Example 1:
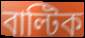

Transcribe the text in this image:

বাল্টিক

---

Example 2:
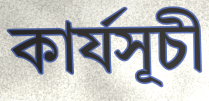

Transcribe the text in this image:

কাৰ্যসূচী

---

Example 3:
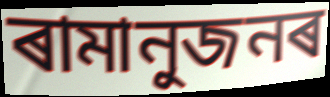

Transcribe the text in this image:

ৰামানুজনৰ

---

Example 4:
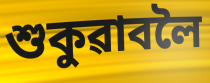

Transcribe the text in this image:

শুকুৱাবলৈ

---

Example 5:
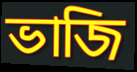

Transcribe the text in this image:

ভাজি